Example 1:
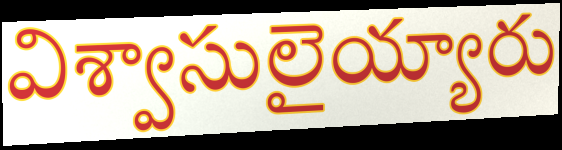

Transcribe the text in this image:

విశ్వాసులైయ్యారు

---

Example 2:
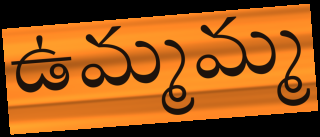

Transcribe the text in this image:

ఉమ్మమ్మ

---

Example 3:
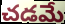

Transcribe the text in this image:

చడమే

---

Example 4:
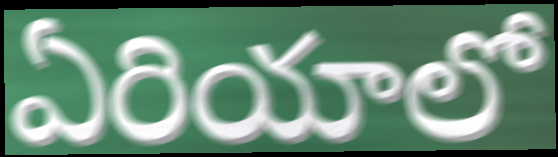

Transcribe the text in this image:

ఏరియాలో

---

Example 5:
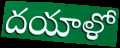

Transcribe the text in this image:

దయాళో